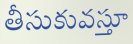
తీసుకువస్తూ